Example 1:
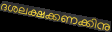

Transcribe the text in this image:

ദശലക്ഷക്കണക്കിനു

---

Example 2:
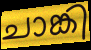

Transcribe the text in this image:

ചാങ്കി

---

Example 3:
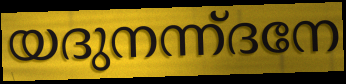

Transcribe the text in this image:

യദുനന്ന്ദനേ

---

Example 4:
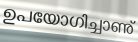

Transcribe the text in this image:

ഉപയോഗിച്ചാണു്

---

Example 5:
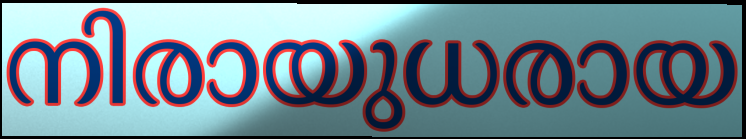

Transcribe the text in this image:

നിരായുധരായ